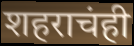
शहराचंही